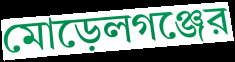
মোড়েলগঞ্জের